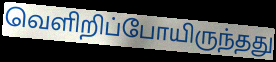
வெளிறிப்போயிருந்தது